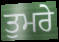
ਤੁਮਰੇ